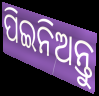
ପିଇନିଅନ୍ତୁ